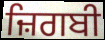
ਜ਼ਿਗਬੀ